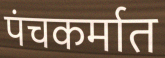
पंचकर्मात